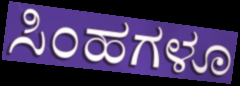
ಸಿಂಹಗಳೂ